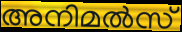
അനിമൽസ്